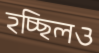
হচ্ছিলও